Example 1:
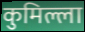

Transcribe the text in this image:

कुमिल्ला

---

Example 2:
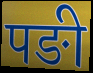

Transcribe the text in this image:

पङी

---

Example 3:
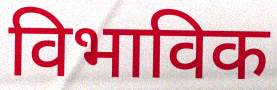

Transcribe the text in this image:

विभाविक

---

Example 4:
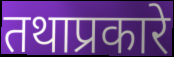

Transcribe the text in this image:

तथाप्रकारे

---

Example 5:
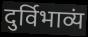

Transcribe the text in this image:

दुर्विभाव्यं